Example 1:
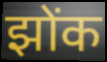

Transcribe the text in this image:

झोंक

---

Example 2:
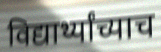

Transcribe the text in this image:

विद्यार्थ्यांच्याच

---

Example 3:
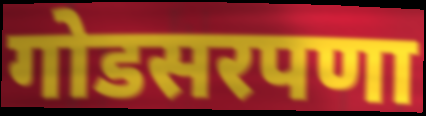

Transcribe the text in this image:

गोडसरपणा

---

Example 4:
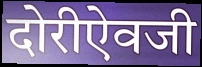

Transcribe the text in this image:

दोरीऐवजी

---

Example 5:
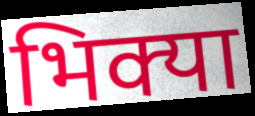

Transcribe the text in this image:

भिक्या